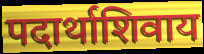
पदार्थाशिवाय